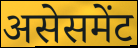
असेसमेंट